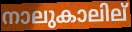
നാലുകാലില്